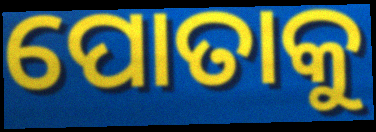
ପୋତାକୁ